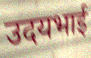
उदयभाई